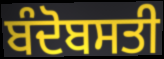
ਬੰਦੋਬਸਤੀ